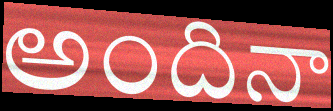
అందినా